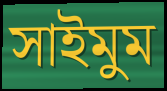
সাইমুম